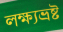
লক্ষ্যভ্রষ্ট